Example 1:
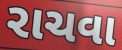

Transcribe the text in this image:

રાચવા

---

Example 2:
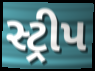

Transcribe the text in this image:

સ્ટ્રીપ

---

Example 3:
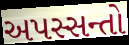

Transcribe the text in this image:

અપસ્સન્તો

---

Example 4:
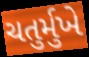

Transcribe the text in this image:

ચતુર્મુખે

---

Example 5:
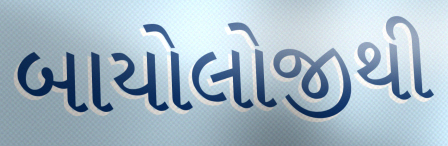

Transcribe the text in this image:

બાયોલોજીથી